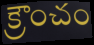
క్రౌంచం